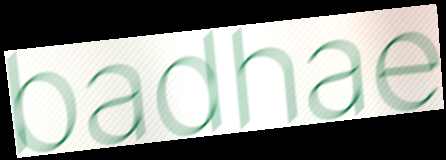
badhae